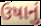
ઉષાનું